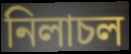
নিলাচল